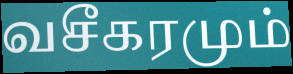
வசீகரமும்